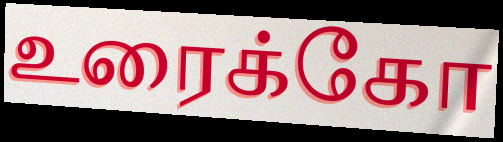
உரைக்கோ